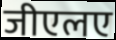
जीएलए